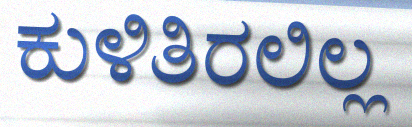
ಕುಳಿತಿರಲಿಲ್ಲ